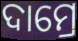
ଦାମ୍ରେ